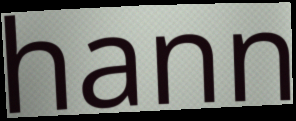
hann